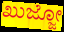
ಖುಜ್ಜೋ